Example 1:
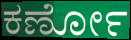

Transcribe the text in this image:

ಕರ್ಣೋ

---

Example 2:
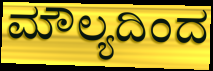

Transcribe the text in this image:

ಮೌಲ್ಯದಿಂದ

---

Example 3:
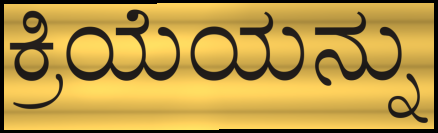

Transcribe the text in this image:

ಕ್ರಿಯೆಯನ್ನು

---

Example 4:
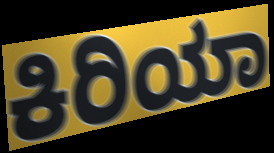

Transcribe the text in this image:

ಕಿರಿಯಾ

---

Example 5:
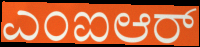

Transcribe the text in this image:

ಎಂಐಆರ್